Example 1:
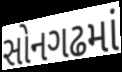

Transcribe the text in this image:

સોનગઢમાં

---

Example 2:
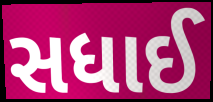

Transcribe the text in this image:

સધાઈ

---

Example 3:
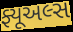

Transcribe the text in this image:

ફ્યૂઅલ્સ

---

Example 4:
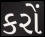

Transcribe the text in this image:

કરોં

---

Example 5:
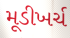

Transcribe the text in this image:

મૂડીખર્ચ